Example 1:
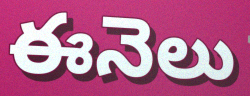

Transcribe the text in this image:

ఈనెలు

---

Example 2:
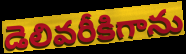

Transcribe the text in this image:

డెలివరీకిగాను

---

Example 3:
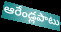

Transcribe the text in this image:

ఆరేండ్లపాటు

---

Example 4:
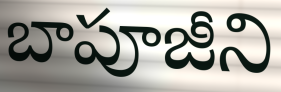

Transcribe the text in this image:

బాపూజీని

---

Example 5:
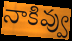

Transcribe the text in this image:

నాకివ్వు